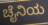
ಚೈನಿಯ